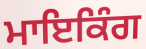
ਮਾਇਕਿੰਗ